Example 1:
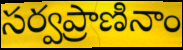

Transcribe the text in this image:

సర్వప్రాణినాం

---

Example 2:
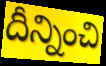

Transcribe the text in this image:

దీన్నించి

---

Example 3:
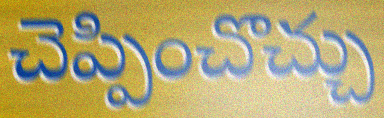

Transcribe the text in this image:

చెప్పించొచ్చు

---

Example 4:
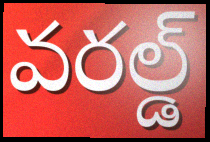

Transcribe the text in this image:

వరల్డ్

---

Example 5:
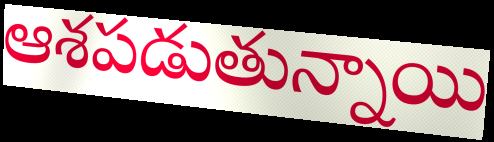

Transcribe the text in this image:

ఆశపడుతున్నాయి